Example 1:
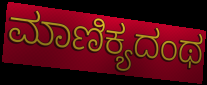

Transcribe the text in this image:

ಮಾಣಿಕ್ಯದಂಥ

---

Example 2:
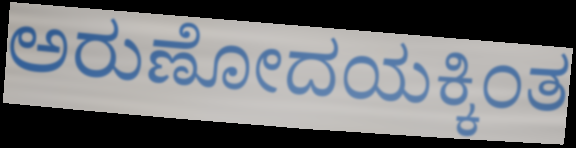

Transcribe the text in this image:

ಅರುಣೋದಯಕ್ಕಿಂತ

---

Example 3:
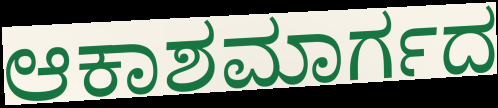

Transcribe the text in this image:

ಆಕಾಶಮಾರ್ಗದ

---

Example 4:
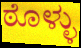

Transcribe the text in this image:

ಠೊಳ್ಳು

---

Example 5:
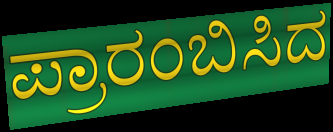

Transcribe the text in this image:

ಪ್ರಾರಂಬಿಸಿದ